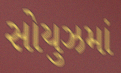
સોયુઝમાં